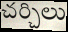
చర్చిలు